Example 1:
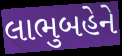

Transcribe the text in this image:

લાભુબહેને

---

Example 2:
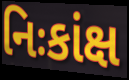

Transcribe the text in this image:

નિઃકાંક્ષ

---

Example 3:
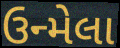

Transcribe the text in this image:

ઉન્મેલા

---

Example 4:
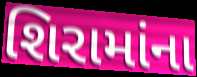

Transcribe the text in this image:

શિરામાંના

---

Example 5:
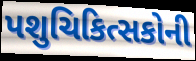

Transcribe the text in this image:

પશુચિકિત્સકોની